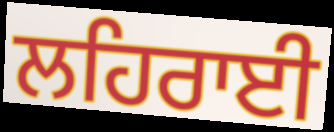
ਲਹਿਰਾਈ